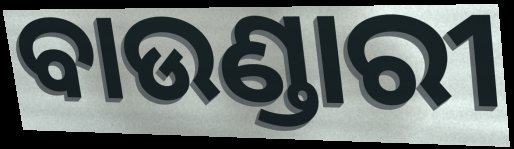
ବାଉଣ୍ଡାରୀ